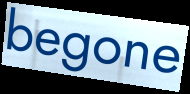
begone